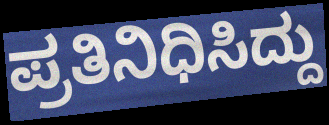
ಪ್ರತಿನಿಧಿಸಿದ್ದು